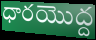
ధారయొద్ద